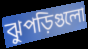
ঝুপড়িগুলো